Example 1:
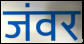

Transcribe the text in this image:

जंवर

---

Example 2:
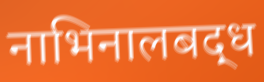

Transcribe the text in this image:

नाभिनालबद्ध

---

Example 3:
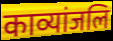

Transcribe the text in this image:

काव्यांजलि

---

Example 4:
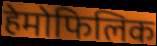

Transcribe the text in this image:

हेमोफिलिक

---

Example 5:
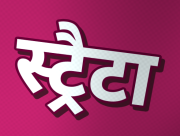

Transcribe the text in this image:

स्ट्रैटा